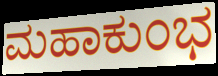
ಮಹಾಕುಂಭ